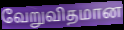
வேறுவிதமான